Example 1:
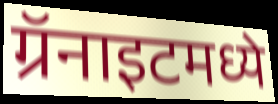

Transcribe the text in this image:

ग्रॅनाइटमध्ये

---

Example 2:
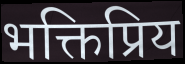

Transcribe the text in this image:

भक्तिप्रिय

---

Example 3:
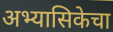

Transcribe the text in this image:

अभ्यासिकेचा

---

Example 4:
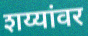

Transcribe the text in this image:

शय्यांवर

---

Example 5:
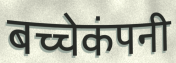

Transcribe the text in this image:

बच्चेकंपनी